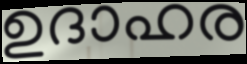
ഉദാഹര